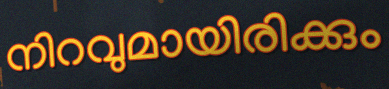
നിറവുമായിരിക്കും